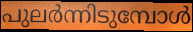
പുലർന്നിടുമ്പോൾ